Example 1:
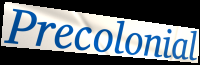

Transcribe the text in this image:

Precolonial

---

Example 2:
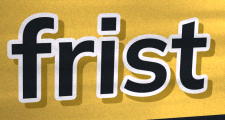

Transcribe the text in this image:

frist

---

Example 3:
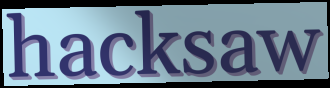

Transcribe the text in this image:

hacksaw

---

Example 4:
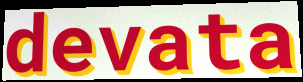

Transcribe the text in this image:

devata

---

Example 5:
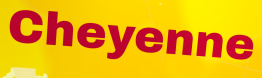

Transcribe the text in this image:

Cheyenne